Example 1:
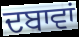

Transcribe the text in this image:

ਦਬਾਵਾਂ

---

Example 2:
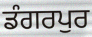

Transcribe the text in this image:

ਡੰਗਰਪੁਰ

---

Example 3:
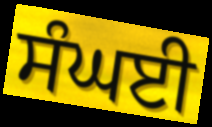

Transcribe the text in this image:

ਸੰਘਈ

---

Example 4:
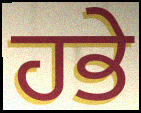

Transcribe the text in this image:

ਹਭੇ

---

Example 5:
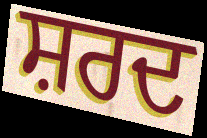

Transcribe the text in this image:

ਸ਼ਰਦ